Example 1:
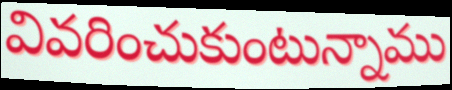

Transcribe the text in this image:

వివరించుకుంటున్నాము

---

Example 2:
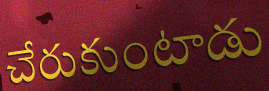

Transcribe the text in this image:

చేరుకుంటాడు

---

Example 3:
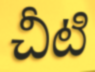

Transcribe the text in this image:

చీటి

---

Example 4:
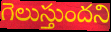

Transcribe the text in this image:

గెలుస్తుందని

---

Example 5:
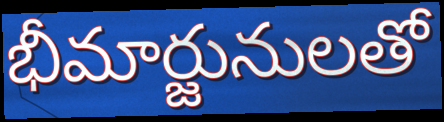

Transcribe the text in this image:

భీమార్జునులతో